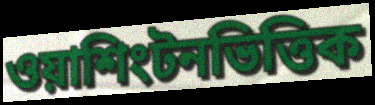
ওয়াশিংটনভিত্তিক